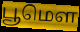
பூமௌ